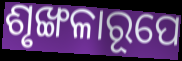
ଶୃଙ୍ଖଳାରୂପେ